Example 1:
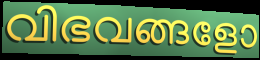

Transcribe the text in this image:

വിഭവങ്ങളോ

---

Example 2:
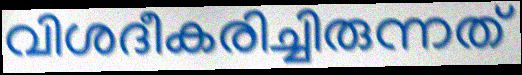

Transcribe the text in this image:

വിശദീകരിച്ചിരുന്നത്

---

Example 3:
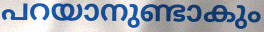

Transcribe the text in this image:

പറയാനുണ്ടാകും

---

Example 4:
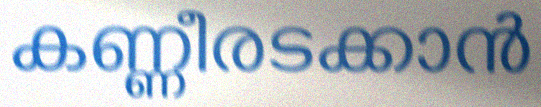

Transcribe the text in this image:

കണ്ണീരടക്കാൻ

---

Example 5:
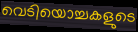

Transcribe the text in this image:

വെടിയൊച്ചകളുടെ